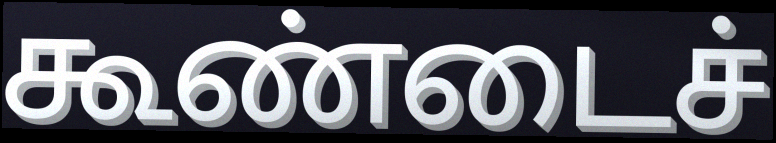
கூண்டைச்